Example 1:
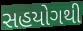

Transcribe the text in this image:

સહયોગથી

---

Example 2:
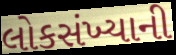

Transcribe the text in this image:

લોકસંખ્યાની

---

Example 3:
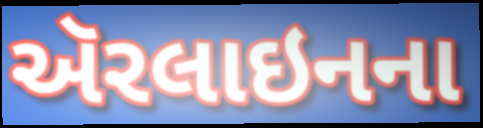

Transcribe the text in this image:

ઍરલાઇનના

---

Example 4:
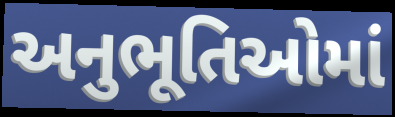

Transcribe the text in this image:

અનુભૂતિઓમાં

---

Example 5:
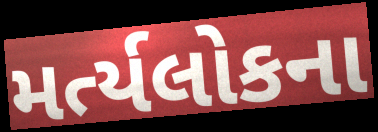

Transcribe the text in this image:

મર્ત્યલોકના